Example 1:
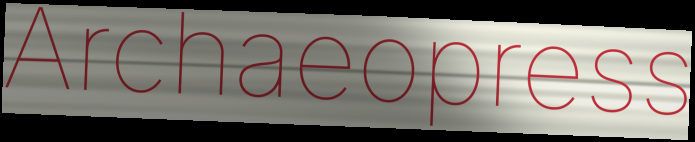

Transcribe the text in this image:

Archaeopress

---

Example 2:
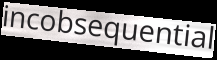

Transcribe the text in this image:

incobsequential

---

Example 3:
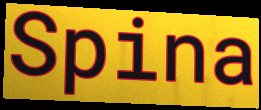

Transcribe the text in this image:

Spina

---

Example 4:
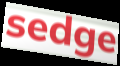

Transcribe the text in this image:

sedge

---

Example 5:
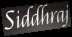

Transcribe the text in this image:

Siddhraj